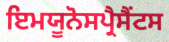
ਇਮਯੂਨੋਸਪ੍ਰੈਸੈਂਟਸ